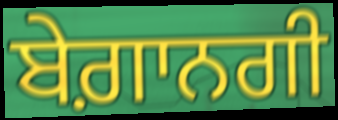
ਬੇਗ਼ਾਨਗੀ